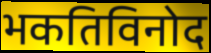
भकतिविनोद